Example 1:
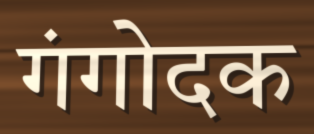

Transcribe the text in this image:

गंगोदक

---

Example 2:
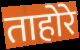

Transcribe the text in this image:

ताहोरे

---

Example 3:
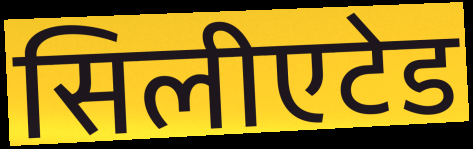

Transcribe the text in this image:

सिलीएटेड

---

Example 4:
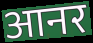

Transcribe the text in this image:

आनर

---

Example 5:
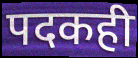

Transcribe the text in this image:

पदकही